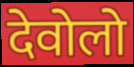
देवोलो